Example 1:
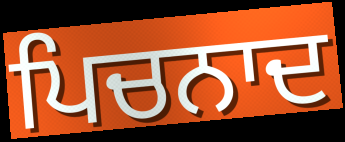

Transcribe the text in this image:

ਪਿਚਨਾਦ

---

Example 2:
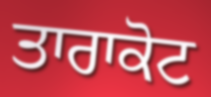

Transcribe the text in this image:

ਤਾਰਾਕੋਟ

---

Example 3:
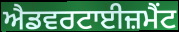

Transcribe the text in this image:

ਐਡਵਰਟਾਈਜ਼ਮੈਂਟ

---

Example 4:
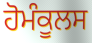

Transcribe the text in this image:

ਹੋਮੰਕੂਲਸ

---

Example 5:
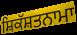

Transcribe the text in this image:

ਸ਼ਿਕੱਸ਼ਤਨਾਮਾ